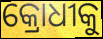
କ୍ରୋଧୀକୁ